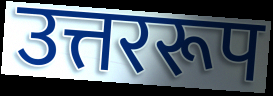
उत्तररूप